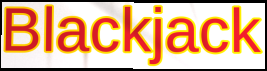
Blackjack